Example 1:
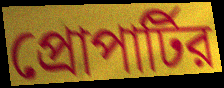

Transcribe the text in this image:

প্রোপার্টির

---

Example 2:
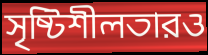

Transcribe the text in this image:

সৃষ্টিশীলতারও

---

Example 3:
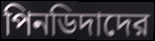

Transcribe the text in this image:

পিনডিদাদের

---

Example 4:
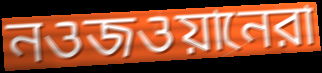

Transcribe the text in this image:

নওজওয়ানেরা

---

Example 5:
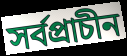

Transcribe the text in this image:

সর্বপ্রাচীন